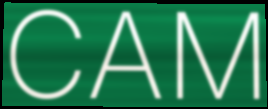
CAM